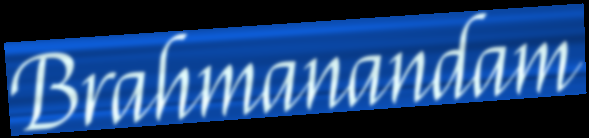
Brahmanandam